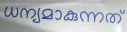
ധന്യമാകുന്നത്